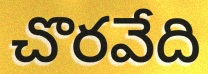
చొరవేది